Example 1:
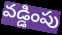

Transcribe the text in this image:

వడ్డింపు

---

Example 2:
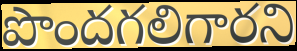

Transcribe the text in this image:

పొందగలిగారని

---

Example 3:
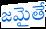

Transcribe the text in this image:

జమైతే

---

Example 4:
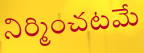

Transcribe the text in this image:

నిర్మించటమే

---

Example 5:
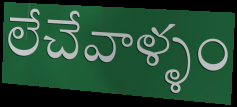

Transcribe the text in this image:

లేచేవాళ్ళం